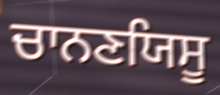
ਚਾਨਣਯਿਸੂ